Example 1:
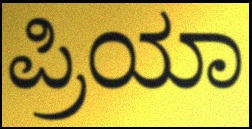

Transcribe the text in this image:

ಪ್ರಿಯಾ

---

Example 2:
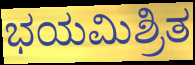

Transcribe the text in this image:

ಭಯಮಿಶ್ರಿತ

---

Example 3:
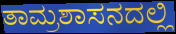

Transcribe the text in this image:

ತಾಮ್ರಶಾಸನದಲ್ಲಿ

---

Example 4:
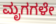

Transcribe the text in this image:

ಮೃಗಗಳೇ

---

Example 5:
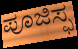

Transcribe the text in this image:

ಪೂಜಿಸ್ಫ